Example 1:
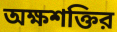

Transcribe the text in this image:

অক্ষশক্তির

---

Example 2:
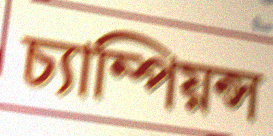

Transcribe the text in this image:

চ্যাম্পিয়ন্স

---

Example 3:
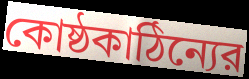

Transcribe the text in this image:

কোষ্ঠকাঠিন্যের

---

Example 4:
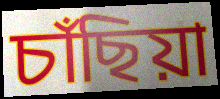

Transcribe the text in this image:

চাঁছিয়া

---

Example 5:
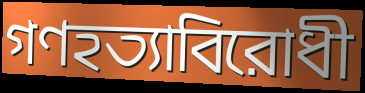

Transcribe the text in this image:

গণহত্যাবিরোধী